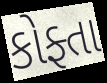
કોફ્તા